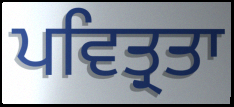
ਪਵਿਤ੍ਰਤਾ